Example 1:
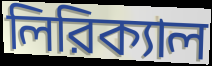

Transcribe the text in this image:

লিরিক্যাল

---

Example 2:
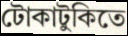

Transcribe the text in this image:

টোকাটুকিতে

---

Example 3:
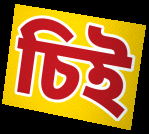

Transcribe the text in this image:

চিই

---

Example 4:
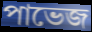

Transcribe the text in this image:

পাভেজ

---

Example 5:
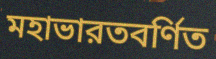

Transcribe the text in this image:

মহাভারতবর্ণিত